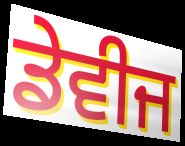
ਡੇਵੀਜ